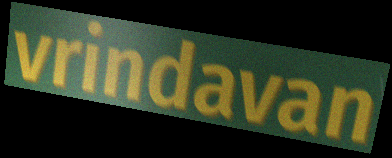
vrindavan